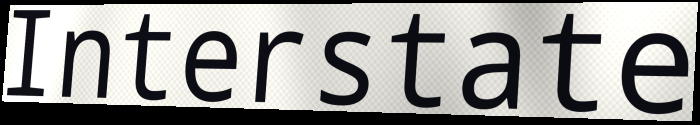
Interstate